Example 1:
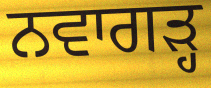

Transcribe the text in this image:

ਨਵਾਗੜ੍ਹ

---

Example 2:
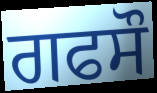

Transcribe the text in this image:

ਗਫਸੌ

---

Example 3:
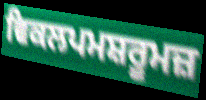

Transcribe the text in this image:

ਵਿਕਲਪਮਸ਼ਰੂਮਜ਼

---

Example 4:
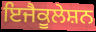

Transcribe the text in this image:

ਇਜੈਕੂਲੇਸ਼ਨ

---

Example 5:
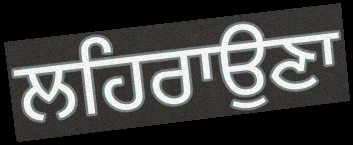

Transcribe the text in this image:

ਲਹਿਰਾਉਣਾ